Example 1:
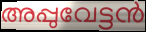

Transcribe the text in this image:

അപ്പുവേട്ടൻ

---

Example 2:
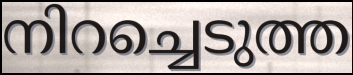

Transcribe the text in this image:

നിറച്ചെടുത്ത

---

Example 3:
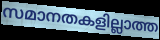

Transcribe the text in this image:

സമാനതകളില്ലാത്ത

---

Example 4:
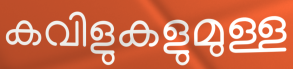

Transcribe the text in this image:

കവിളുകളുമുള്ള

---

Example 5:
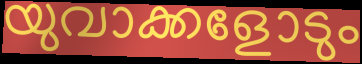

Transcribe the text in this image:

യുവാക്കളോടും